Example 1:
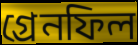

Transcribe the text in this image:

গ্রেনফিল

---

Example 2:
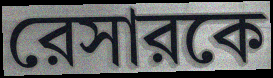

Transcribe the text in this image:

রেসারকে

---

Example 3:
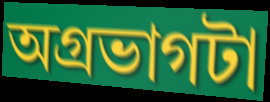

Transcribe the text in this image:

অগ্রভাগটা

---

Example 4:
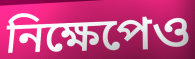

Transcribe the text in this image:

নিক্ষেপেও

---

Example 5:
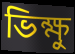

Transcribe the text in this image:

ভিক্ষু